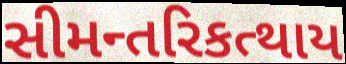
સીમન્તરિકત્થાય